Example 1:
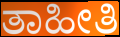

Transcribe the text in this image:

ತಾಹೀತಿ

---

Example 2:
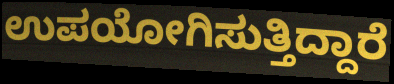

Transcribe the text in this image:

ಉಪಯೋಗಿಸುತ್ತಿದ್ದಾರೆ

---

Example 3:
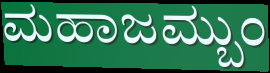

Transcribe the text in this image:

ಮಹಾಜಮ್ಬುಂ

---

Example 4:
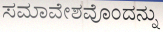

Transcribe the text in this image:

ಸಮಾವೇಶವೊಂದನ್ನು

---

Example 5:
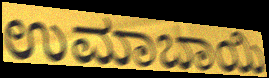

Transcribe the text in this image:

ಉಮಾಬಾಯಿ